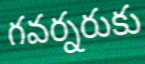
గవర్నరుకు